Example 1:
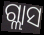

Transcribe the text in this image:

ଗ୍ଲାସ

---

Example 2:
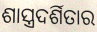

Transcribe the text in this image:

ଶାସ୍ତ୍ରଦର୍ଶିତାର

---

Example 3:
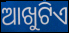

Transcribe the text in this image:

ଆଖୁଟିଏ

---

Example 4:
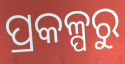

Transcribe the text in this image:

ପ୍ରକଳ୍ପରୁ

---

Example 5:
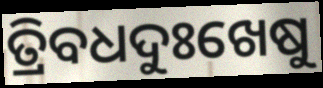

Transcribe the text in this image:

ତ୍ରିବଧଦୁଃଖେଷୁ